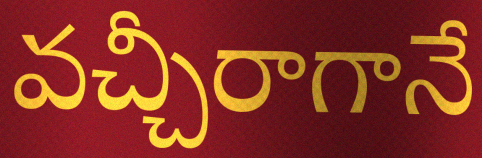
వచ్చీరాగానే